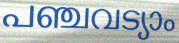
പഞ്ചവട്യാം